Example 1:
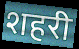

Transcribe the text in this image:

शहरी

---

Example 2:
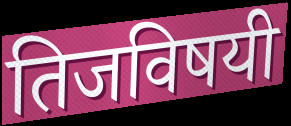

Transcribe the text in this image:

तिजविषयी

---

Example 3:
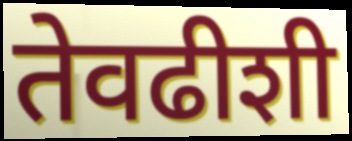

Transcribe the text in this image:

तेवढीशी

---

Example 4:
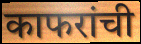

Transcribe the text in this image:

काफरांची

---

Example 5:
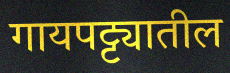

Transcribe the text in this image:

गायपट्ट्यातील